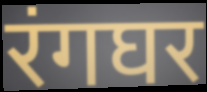
रंगघर